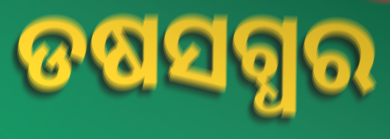
ଡଷସଗ୍ଧର